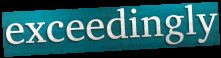
exceedingly